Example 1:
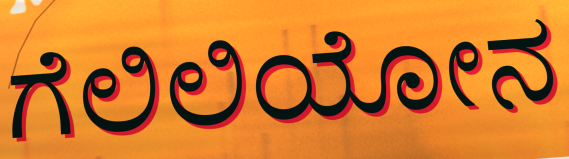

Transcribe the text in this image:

ಗೆಲಿಲಿಯೋನ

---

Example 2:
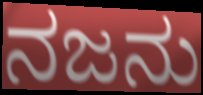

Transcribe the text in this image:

ನಜನು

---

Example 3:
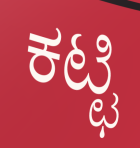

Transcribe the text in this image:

ಕಟ್ಟಿ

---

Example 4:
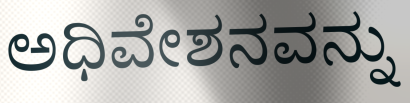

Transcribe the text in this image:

ಅಧಿವೇಶನವನ್ನು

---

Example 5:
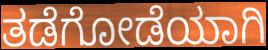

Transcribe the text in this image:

ತಡೆಗೋಡೆಯಾಗಿ